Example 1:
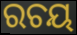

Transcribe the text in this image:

ରଚୟ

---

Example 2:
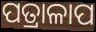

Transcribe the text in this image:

ପତ୍ରାଳାପ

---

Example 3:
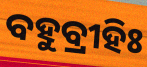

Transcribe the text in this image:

ବହୁବ୍ରୀହିଃ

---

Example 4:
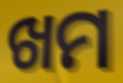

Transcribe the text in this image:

ଖମ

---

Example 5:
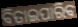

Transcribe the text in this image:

ବିତାଇପାରିବ